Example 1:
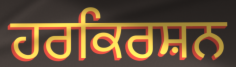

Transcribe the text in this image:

ਹਰਕਿਰਸ਼ਨ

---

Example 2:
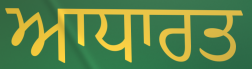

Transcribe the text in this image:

ਆਧਾਰਤ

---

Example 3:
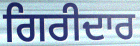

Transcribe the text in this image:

ਗਿਰੀਦਾਰ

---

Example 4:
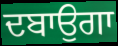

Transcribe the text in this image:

ਦਬਾਉਗਾ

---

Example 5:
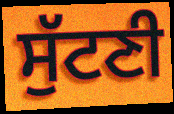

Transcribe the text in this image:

ਸੁੱਟਣੀ